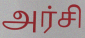
அர்சி